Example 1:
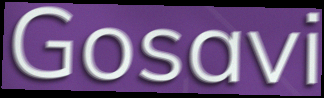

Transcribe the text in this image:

Gosavi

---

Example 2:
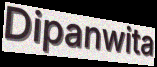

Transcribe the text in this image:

Dipanwita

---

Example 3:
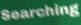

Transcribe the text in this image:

Searching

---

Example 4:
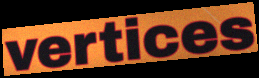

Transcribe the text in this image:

vertices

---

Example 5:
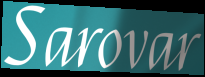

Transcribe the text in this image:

Sarovar